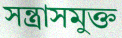
সন্ত্রাসমুক্ত